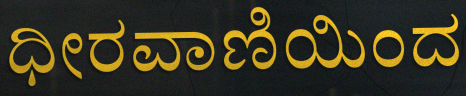
ಧೀರವಾಣಿಯಿಂದ